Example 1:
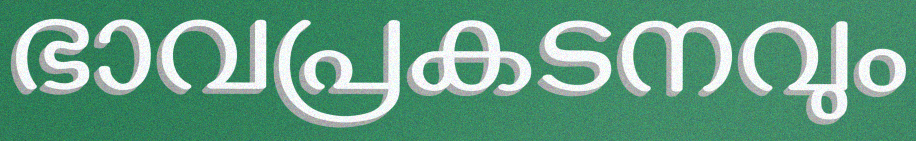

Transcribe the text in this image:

ഭാവപ്രകടനവും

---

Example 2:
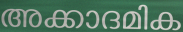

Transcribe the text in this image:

അക്കാദമിക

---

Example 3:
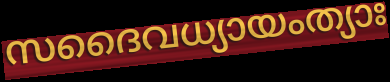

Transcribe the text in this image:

സദൈവധ്യായംത്യാഃ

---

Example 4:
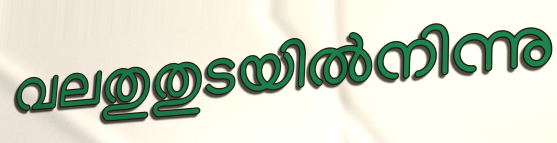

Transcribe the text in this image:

വലതുതുടയിൽനിന്നു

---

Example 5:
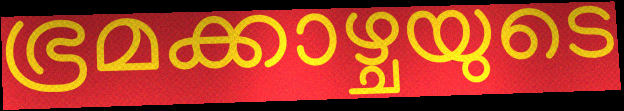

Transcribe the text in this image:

ഭ്രമക്കാഴ്ചയുടെ